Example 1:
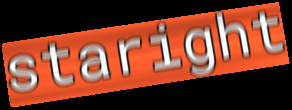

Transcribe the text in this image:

staright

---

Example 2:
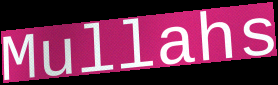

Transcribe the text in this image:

Mullahs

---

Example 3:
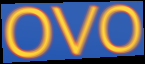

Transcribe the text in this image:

OVO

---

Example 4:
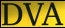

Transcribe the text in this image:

DVA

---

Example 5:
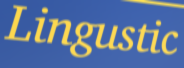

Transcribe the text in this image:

Lingustic